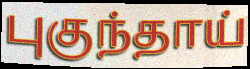
புகுந்தாய்